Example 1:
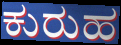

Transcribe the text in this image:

ಕುರುಹ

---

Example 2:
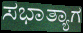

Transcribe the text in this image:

ಸಭಾತ್ಯಾಗ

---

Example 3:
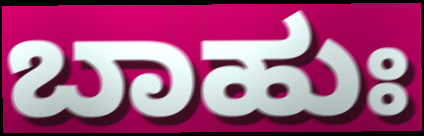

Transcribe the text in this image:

ಬಾಹುಃ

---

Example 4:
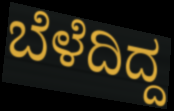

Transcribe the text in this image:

ಬೆಳೆದಿದ್ದ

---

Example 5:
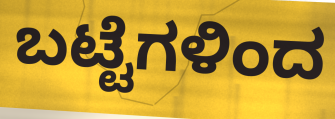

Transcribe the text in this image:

ಬಟ್ಟೆಗಳಿಂದ